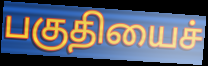
பகுதியைச்